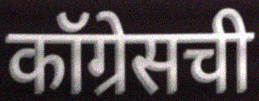
कॉग्रेसची